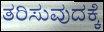
ತರಿಸುವುದಕ್ಕೆ